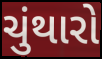
ચુંથારો